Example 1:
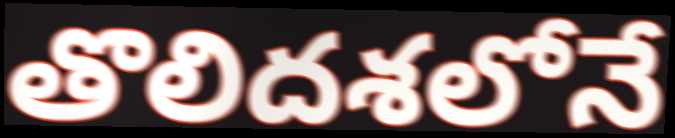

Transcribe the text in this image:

తొలిదశలోనే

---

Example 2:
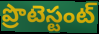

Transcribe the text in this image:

ప్రొటెస్టంట్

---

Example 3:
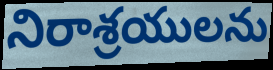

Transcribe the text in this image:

నిరాశ్రయులను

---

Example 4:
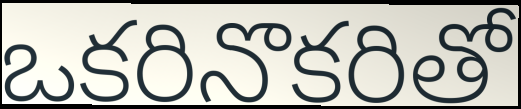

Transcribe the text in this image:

ఒకరినొకరితో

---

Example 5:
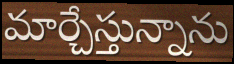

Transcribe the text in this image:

మార్చేస్తున్నాను